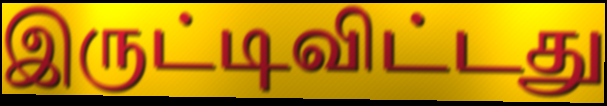
இருட்டிவிட்டது